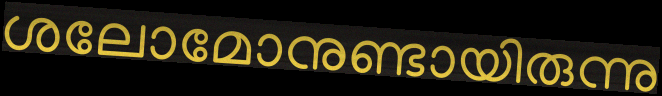
ശലോമോനുണ്ടായിരുന്നു